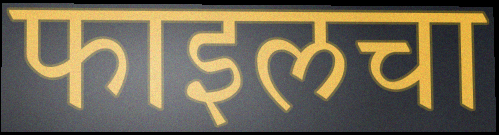
फाइलचा